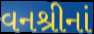
વનશ્રીનાં